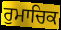
ਰੁਮਾਚਿਕ